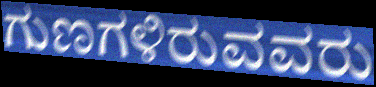
ಗುಣಗಳಿರುವವರು